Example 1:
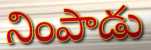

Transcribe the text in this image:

నింపాడు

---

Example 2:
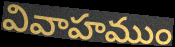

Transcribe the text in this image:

వివాహముం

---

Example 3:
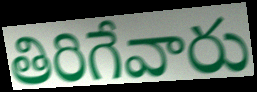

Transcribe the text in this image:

తిరిగేవారు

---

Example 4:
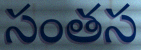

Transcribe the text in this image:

సంతస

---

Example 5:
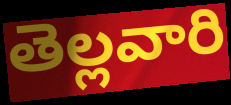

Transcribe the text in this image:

తెల్లవారి